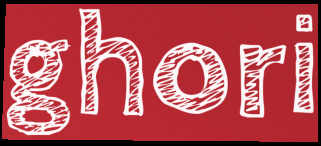
ghori